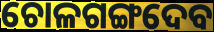
ଚୋଳଗଙ୍ଗଦେବ